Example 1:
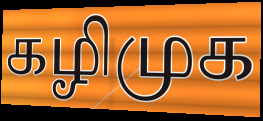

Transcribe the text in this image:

கழிமுக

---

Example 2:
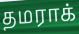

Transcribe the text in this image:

தமராக்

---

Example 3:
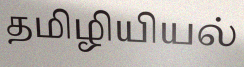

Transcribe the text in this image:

தமிழியியல்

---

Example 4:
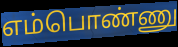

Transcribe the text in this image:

எம்பொண்ணு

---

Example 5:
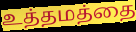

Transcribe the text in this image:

உத்தமத்தை